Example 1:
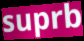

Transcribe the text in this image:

suprb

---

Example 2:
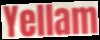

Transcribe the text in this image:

Yellam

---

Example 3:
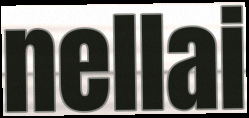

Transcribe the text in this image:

nellai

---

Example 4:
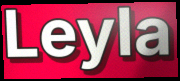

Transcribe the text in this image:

Leyla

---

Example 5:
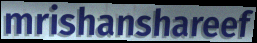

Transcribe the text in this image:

mrishanshareef